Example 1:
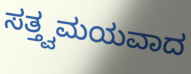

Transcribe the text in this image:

ಸತ್ತ್ವಮಯವಾದ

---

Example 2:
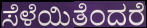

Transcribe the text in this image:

ಸೆಳೆಯಿತೆಂದರೆ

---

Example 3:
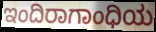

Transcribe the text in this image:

ಇಂದಿರಾಗಾಂಧಿಯ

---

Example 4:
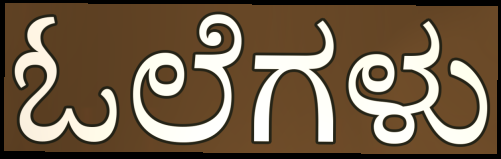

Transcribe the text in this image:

ಓಲೆಗಳು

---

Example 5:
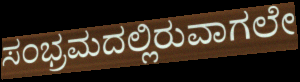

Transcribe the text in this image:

ಸಂಭ್ರಮದಲ್ಲಿರುವಾಗಲೇ